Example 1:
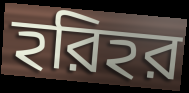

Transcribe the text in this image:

হরিহর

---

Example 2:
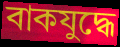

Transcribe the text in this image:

বাকযুদ্ধে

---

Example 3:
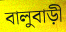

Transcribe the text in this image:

বালুবাড়ী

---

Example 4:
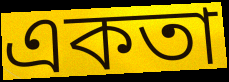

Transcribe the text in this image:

একতা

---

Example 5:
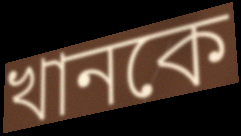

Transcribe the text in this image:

খানকে